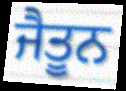
ਜੈਤੂਨ